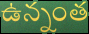
ఉన్నంత